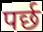
पर्छ